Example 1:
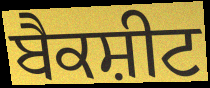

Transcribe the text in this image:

ਬੈਕਸ਼ੀਟ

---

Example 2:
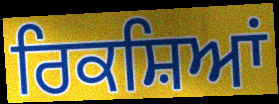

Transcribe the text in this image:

ਰਿਕਸ਼ਿਆਂ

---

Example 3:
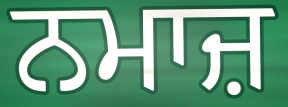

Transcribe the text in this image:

ਨਮਾਜ਼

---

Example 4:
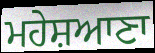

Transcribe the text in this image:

ਮਹੇਸ਼ਆਣਾ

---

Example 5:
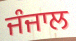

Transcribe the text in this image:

ਜੰਜਾਲ